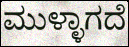
ಮುಳ್ಳಾಗದೆ